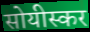
सोयीस्कर